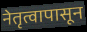
नेतृत्वापासून